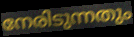
നേരിടുന്നതും